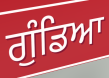
ਗੁੰਡਿਆ